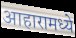
आहारामध्ये